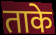
ताके